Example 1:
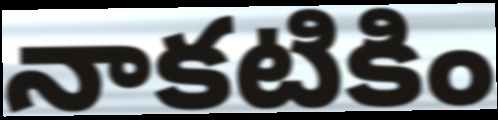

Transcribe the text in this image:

నాకటికిం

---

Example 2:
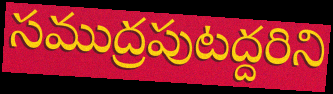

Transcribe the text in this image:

సముద్రపుటద్దరిని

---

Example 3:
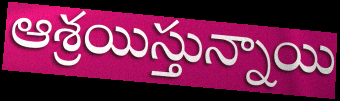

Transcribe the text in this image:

ఆశ్రయిస్తున్నాయి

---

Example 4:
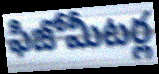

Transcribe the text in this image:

ఫిజోమీటర్ల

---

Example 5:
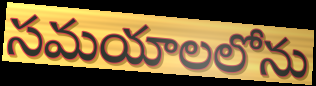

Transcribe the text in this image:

సమయాలలోను